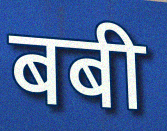
बबी